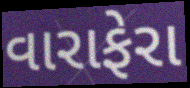
વારાફેરા